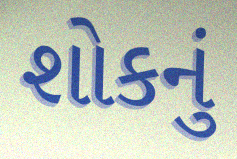
શોકનું